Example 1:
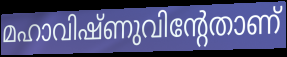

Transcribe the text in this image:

മഹാവിഷ്ണുവിന്റേതാണ്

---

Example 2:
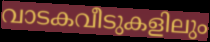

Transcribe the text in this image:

വാടകവീടുകളിലും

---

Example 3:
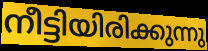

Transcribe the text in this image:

നീട്ടിയിരിക്കുന്നു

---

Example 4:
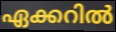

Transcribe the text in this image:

ഏക്കറിൽ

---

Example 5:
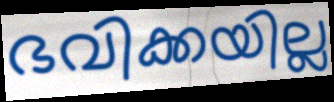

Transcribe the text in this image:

ഭവിക്കയില്ല